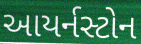
આયર્નસ્ટોન